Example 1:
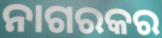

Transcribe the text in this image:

ନାଗରକର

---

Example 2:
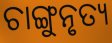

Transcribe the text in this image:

ଚାଙ୍ଗୁନୃତ୍ୟ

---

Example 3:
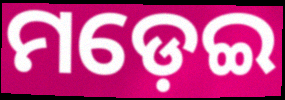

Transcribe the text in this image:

ମଡ଼େଇ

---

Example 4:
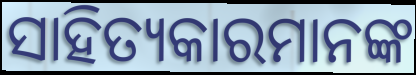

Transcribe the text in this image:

ସାହିତ୍ୟକାରମାନଙ୍କ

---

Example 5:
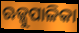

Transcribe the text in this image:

ଋଜ୍ଜୁପାଳିକା